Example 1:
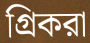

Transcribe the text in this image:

গ্রিকরা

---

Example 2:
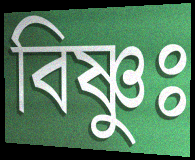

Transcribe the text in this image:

বিষ্ণুঃ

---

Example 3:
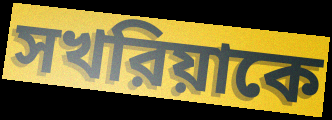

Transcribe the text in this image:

সখরিয়াকে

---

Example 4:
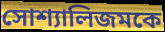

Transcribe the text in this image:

সোশ্যালিজমকে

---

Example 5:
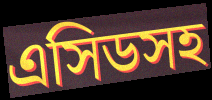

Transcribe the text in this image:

এসিডসহ